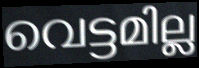
വെട്ടമില്ല